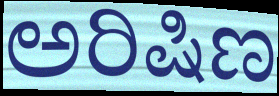
ಅರಿಷಿಣ